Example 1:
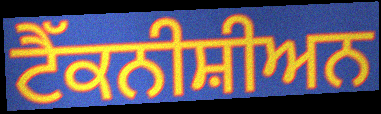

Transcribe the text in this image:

ਟੈੱਕਨੀਸ਼ੀਅਨ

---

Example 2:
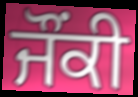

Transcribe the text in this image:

ਜੌਂਕੀ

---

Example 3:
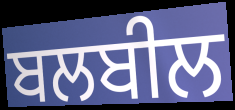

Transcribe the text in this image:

ਬਲਬੀਲ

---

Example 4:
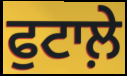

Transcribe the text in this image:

ਫੁਟਾਲ਼ੇ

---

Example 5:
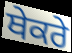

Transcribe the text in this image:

ਥੇਕਰੇ